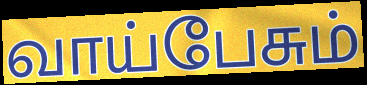
வாய்பேசும்